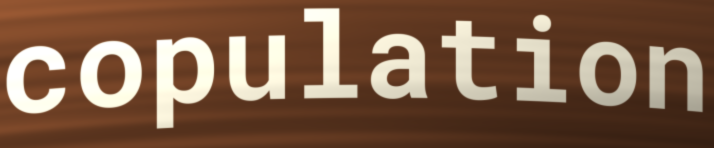
copulation